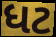
ધટ